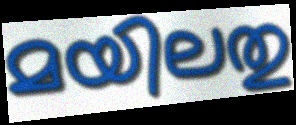
മയിലതു